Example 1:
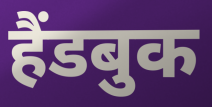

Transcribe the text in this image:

हैंडबुक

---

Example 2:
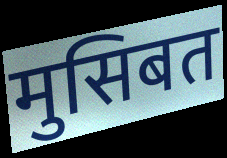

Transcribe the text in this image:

मुसिबत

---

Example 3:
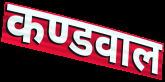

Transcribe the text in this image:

कण्डवाल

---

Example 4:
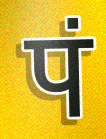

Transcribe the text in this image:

पं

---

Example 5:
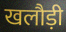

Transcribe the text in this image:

खलौड़ी